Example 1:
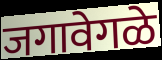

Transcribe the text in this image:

जगावेगळे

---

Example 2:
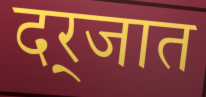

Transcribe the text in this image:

दर्जात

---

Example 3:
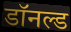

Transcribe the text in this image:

डॉनल्ड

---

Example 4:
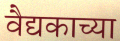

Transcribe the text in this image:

वैद्यकाच्या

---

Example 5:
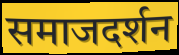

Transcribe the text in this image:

समाजदर्शन